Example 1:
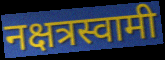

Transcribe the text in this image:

नक्षत्रस्वामी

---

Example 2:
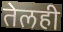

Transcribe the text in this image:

तेलही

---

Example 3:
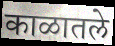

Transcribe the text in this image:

काळातले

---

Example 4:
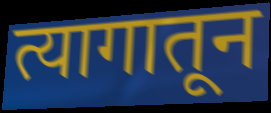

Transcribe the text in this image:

त्यागातून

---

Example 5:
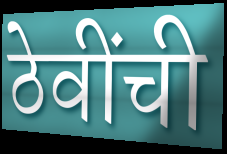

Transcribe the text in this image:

ठेवींची